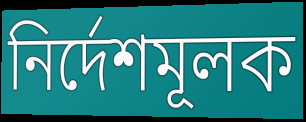
নির্দেশমূলক